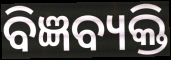
ବିଜ୍ଞବ୍ୟକ୍ତି